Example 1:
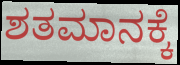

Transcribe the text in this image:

ಶತಮಾನಕ್ಕೆ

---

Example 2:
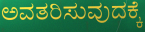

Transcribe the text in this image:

ಅವತರಿಸುವುದಕ್ಕೆ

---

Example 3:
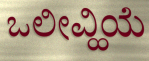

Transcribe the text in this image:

ಒಲೀವ್ಹಿಯೆ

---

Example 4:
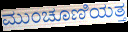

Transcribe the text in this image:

ಮುಂಚೂಣಿಯತ್ತ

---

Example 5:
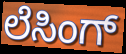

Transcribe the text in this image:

ಲೆಸಿಂಗ್